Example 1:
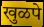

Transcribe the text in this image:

खुळपे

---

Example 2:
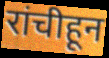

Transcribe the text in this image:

रांचीहून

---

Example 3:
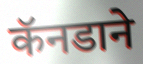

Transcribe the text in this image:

कॅनडाने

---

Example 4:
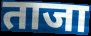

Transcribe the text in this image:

ताजा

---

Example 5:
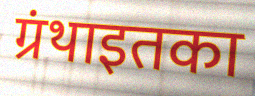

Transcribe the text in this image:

ग्रंथाइतका